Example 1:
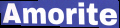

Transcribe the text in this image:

Amorite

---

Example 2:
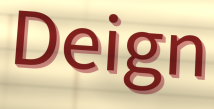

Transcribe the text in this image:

Deign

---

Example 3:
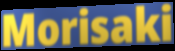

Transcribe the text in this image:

Morisaki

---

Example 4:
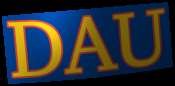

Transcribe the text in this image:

DAU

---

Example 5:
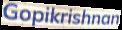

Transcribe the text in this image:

Gopikrishnan